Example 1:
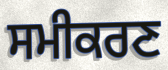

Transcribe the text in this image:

ਸਮੀਕਰਣ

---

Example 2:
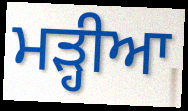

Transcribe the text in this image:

ਮੜ੍ਹੀਆ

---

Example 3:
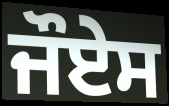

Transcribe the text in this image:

ਜੌਏਸ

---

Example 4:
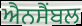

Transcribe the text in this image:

ਐਨਸੈਂਬਲ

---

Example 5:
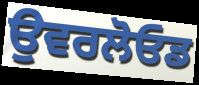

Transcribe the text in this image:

ਉਵਰਲੋਓਡ